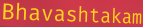
Bhavashtakam